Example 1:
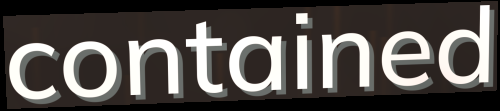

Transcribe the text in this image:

contained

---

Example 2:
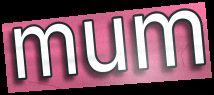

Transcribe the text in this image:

mum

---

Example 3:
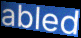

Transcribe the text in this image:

abled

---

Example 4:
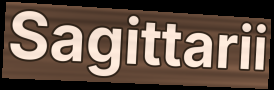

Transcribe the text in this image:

Sagittarii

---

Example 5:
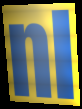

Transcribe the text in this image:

nl